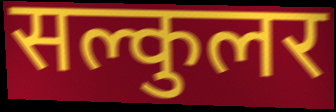
सल्कुलर